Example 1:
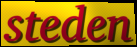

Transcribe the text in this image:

steden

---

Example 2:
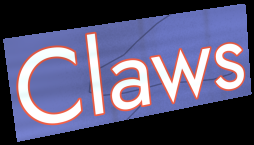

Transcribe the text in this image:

Claws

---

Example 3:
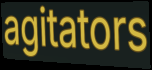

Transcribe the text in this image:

agitators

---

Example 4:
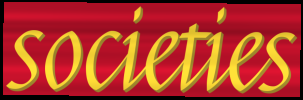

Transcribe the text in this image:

societies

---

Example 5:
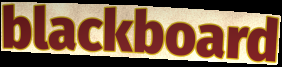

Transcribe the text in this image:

blackboard